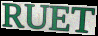
RUET